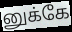
னுக்கே